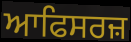
ਆਫਿਸਰਜ਼